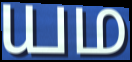
யம